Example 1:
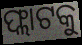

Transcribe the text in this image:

ଫ୍ଲାଟକୁ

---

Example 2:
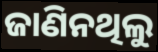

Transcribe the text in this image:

ଜାଣିନଥିଲୁ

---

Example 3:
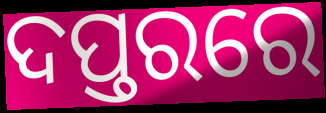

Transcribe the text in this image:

ଦପ୍ତରରେ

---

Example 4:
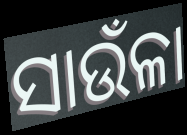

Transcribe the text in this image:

ସାଉଁଳା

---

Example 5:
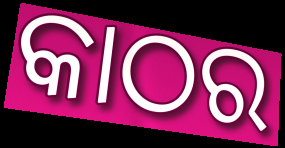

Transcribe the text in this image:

କାଠର